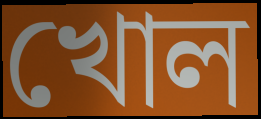
খোল